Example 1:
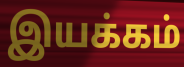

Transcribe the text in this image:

இயக்கம்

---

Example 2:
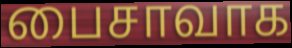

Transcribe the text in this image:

பைசாவாக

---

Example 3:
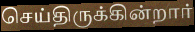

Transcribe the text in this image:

செய்திருக்கின்றார்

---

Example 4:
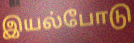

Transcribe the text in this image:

இயல்போடு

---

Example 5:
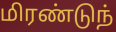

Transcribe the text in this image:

மிரண்டுந்